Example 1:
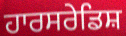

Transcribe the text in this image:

ਹਾਰਸਰੇਡਿਸ਼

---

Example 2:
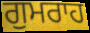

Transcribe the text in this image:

ਗੁਮਰਾਹ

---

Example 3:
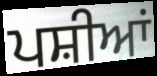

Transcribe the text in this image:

ਪਸ਼ੀਆਂ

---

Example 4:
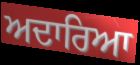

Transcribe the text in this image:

ਅਦਾਰਿਆ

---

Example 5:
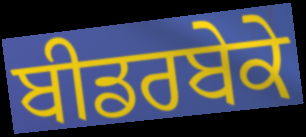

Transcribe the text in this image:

ਬੀਡਰਬੇਕੇ